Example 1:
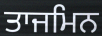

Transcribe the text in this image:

ਤਾਜਮਿਨ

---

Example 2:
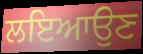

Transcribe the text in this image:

ਲਇਆਉਣ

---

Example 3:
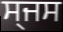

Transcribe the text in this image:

ਸ੍ਜਸ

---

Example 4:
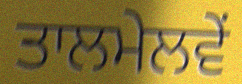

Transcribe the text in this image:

ਤਾਲਮੇਲਵੇਂ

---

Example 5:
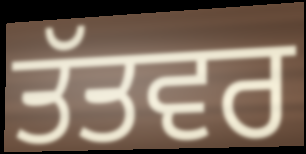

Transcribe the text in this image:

ਤੱਤਵਰ